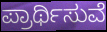
ಪ್ರಾರ್ಥಿಸುವೆ